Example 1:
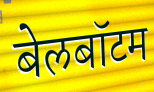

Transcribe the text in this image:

बेलबॉटम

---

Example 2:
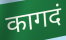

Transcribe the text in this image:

कागदं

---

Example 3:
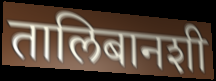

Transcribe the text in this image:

तालिबानशी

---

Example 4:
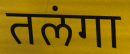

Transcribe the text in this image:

तलंगा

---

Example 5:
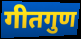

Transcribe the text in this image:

गीतगुण